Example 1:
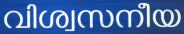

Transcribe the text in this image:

വിശ്വസനീയ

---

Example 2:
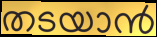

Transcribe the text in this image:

തടയാൻ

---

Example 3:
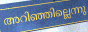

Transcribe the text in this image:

അറിഞ്ഞില്ലെന്നു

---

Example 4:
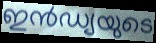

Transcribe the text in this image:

ഇൻഡ്യയുടെ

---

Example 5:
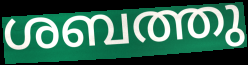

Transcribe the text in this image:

ശബത്തു